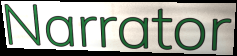
Narrator